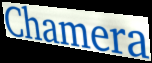
Chamera